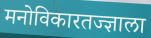
मनोविकारतज्ज्ञाला